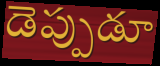
డెప్పుడూ